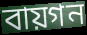
বায়গন